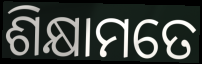
ଶିକ୍ଷାମତେ